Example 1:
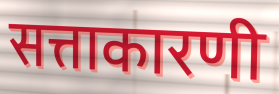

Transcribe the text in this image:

सत्ताकारणी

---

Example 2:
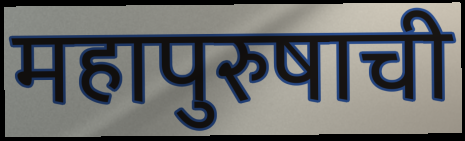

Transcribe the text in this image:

महापुरुषाची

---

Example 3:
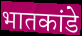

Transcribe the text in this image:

भातकांडे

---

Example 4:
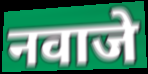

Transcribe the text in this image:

नवाजे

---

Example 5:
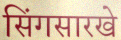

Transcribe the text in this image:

सिंगसारखे